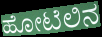
ಹೋಟೆಲಿನ